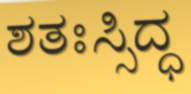
ಶತಃಸ್ಸಿದ್ಧ